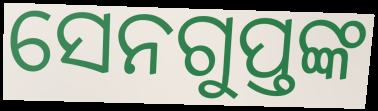
ସେନଗୁପ୍ତଙ୍କ